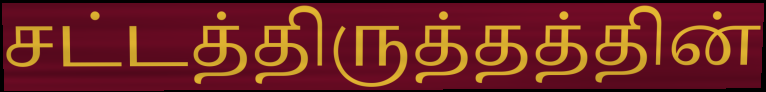
சட்டத்திருத்தத்தின்